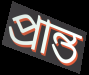
প্ৰান্ত